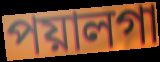
পয়ালগা